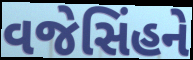
વજેસિંહને